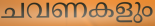
ചവണകളും